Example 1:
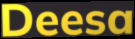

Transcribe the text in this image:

Deesa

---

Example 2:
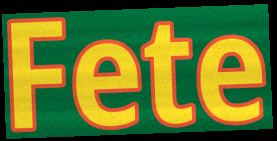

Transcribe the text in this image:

Fete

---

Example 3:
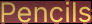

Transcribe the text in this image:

Pencils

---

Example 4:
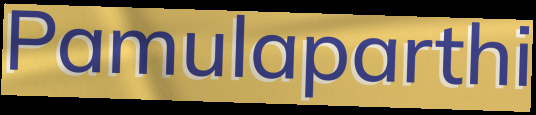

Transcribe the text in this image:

Pamulaparthi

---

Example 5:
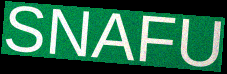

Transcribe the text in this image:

SNAFU